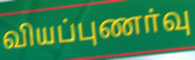
வியப்புணர்வு